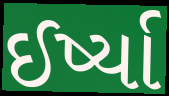
ઈર્ષ્યા